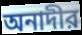
অনাদীর